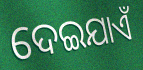
ଦେଇଯାଏଁ